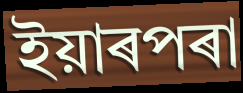
ইয়াৰপৰা